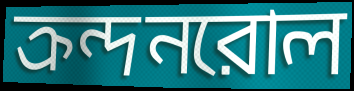
ক্রন্দনরোল